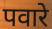
पवारे